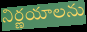
నిర్ణయాలను